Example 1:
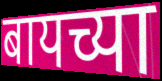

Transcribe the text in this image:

बायच्या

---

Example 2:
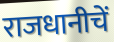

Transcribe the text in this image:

राजधानीचें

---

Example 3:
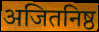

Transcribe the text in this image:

अजितनिष्ठ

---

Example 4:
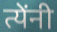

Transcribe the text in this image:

त्येंनी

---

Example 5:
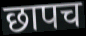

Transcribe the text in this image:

छापच